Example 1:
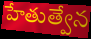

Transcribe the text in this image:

హేతుత్వేన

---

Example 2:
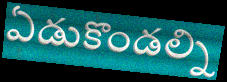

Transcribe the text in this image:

ఏడుకొండల్ని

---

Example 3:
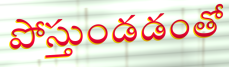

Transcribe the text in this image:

పోస్తుండడంతో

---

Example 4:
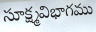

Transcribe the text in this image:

సూక్ష్మవిభాగము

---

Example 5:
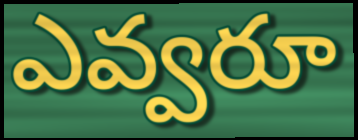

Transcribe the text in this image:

ఎవ్వరూ